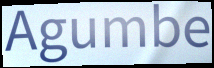
Agumbe